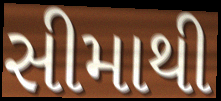
સીમાથી